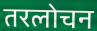
तरलोचन